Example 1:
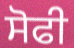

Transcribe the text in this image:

ਸੋਫੀ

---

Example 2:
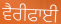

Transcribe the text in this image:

ਵੈਰੀਫਾਈ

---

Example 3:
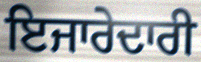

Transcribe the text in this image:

ਇਜਾਰੇਦਾਰੀ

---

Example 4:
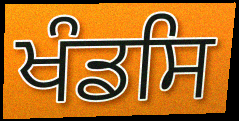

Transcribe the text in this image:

ਖੰਡਸਿ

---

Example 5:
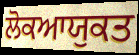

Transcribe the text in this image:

ਲੋਕਆਯੁਕਤ